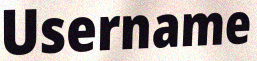
Username